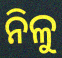
ନିଳୁ